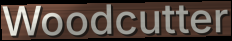
Woodcutter